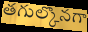
తగుల్కొనగా